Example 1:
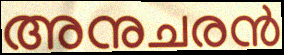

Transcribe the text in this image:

അനുചരൻ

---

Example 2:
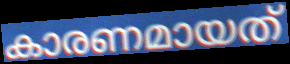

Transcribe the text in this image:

കാരണമായത്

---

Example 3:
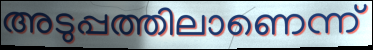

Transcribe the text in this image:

അടുപ്പത്തിലാണെന്ന്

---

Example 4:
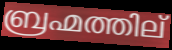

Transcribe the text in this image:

ബ്രഹ്മത്തില്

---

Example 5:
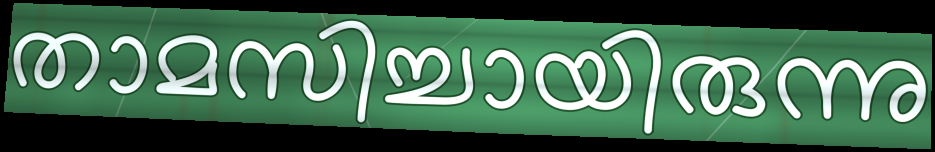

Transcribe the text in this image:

താമസിച്ചായിരുന്നു